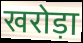
खरोड़ा